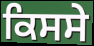
ਕਿਸਸੇ